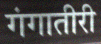
गंगातीरी